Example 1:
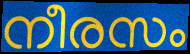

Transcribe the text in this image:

നീരസം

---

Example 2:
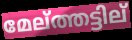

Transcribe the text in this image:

മേല്ത്തട്ടില്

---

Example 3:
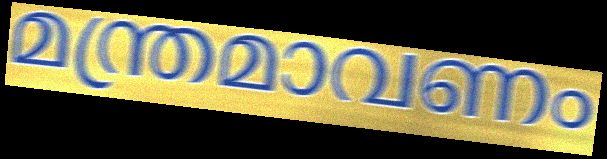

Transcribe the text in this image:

മന്ത്രമാവണം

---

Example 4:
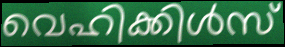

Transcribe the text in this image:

വെഹിക്കിൾസ്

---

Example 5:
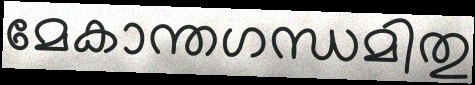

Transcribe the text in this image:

മേകാന്തഗന്ധമിതു